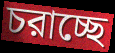
চরাচ্ছে